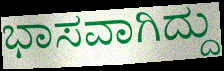
ಭಾಸವಾಗಿದ್ದು